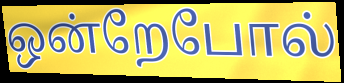
ஒன்றேபோல்